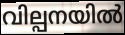
വില്പനയിൽ